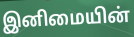
இனிமையின்